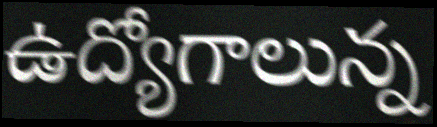
ఉద్యోగాలున్న